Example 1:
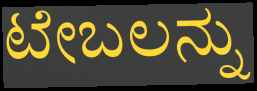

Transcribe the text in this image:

ಟೇಬಲನ್ನು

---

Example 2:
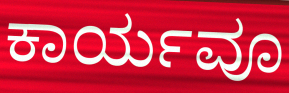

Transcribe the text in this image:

ಕಾರ್ಯವೂ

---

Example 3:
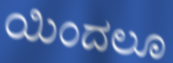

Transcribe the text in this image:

ಯಿಂದಲೂ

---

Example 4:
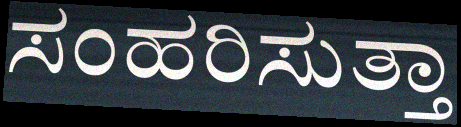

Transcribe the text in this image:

ಸಂಹರಿಸುತ್ತಾ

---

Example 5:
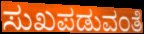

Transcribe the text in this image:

ಸುಖಪಡುವಂತೆ